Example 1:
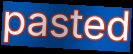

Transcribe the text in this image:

pasted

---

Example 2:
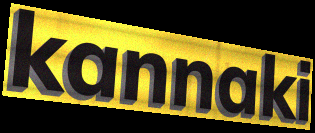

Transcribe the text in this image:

kannaki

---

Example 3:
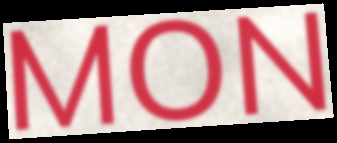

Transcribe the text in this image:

MON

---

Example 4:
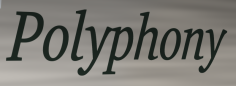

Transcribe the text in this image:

Polyphony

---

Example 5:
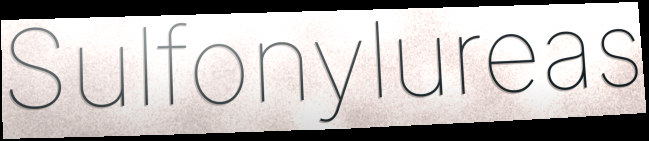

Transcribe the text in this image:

Sulfonylureas